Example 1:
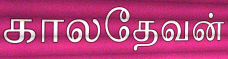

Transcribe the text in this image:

காலதேவன்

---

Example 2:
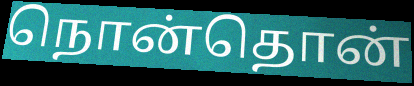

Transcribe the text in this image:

நொன்தொன்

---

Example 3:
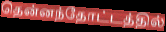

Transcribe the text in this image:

தென்னந்தோட்டத்தில்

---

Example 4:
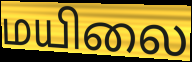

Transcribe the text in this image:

மயிலை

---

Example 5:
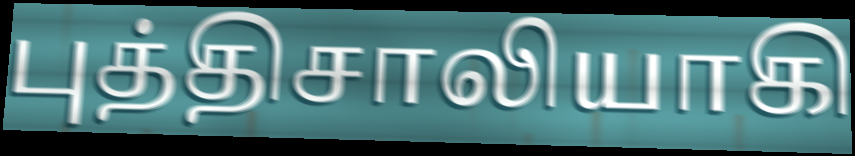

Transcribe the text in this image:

புத்திசாலியாகி